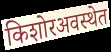
किशोरअवस्थेत